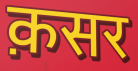
क़सर